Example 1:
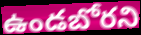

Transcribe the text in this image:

ఉండబోరని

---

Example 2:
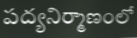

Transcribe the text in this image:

పద్యనిర్మాణంలో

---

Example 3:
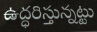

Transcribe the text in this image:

ఉద్ధరిస్తున్నట్టు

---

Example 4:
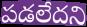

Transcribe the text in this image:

పడలేదని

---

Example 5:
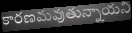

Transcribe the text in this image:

కారణమవుతున్నాయని